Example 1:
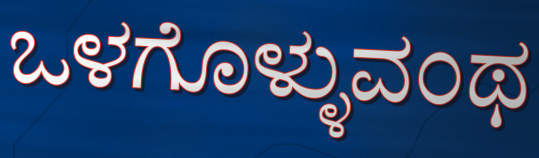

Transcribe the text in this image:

ಒಳಗೊಳ್ಳುವಂಥ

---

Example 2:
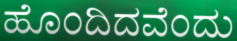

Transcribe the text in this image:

ಹೊಂದಿದವೆಂದು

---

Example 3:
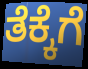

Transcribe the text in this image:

ತೆಕ್ಕೆಗೆ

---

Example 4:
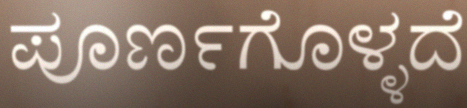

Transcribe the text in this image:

ಪೂರ್ಣಗೊಳ್ಳದೆ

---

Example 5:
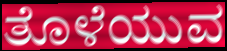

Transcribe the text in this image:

ತೊಳೆಯುವ